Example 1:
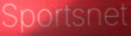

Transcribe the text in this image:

Sportsnet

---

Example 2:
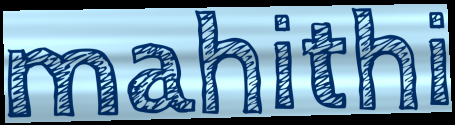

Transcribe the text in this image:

mahithi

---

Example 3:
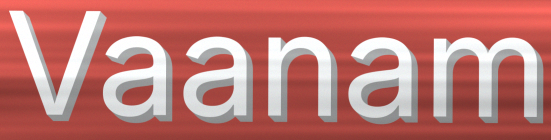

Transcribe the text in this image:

Vaanam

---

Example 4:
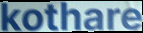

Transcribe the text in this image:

kothare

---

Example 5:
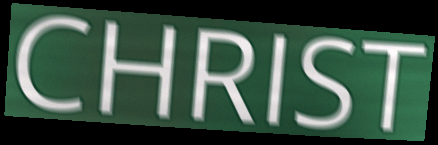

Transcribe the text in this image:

CHRIST